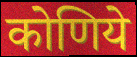
कोणिये